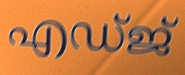
എഡ്ജ്